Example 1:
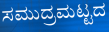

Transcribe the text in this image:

ಸಮುದ್ರಮಟ್ಟದ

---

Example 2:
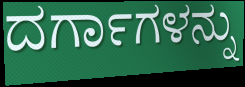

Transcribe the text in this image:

ದರ್ಗಾಗಳನ್ನು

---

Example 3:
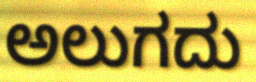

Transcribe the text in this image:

ಅಲುಗದು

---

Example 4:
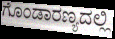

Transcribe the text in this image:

ಗೊಂಡಾರಣ್ಯದಲ್ಲಿ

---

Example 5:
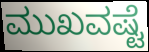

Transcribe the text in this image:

ಮುಖವಷ್ಟೆ